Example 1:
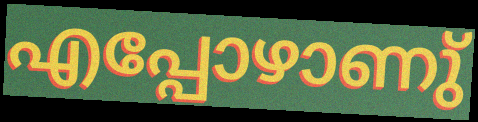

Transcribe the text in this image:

എപ്പോഴാണു്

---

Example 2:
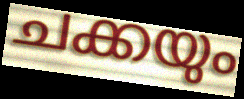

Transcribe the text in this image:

ചക്കയും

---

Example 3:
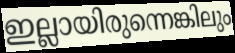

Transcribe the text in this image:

ഇല്ലായിരുന്നെങ്കിലും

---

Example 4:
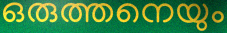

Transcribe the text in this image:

ഒരുത്തനെയും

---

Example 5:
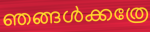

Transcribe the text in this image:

ഞങ്ങൾക്കത്രേ